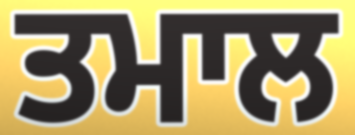
ਤਮਾਲ